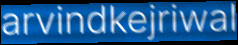
arvindkejriwal